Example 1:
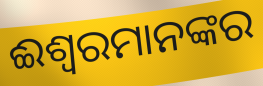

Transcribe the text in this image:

ଈଶ୍ୱରମାନଙ୍କର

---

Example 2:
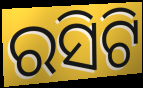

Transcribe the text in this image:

ରସିଟି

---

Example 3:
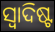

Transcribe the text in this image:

ସ୍ବାଦିଷ୍ଟ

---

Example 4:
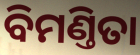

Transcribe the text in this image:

ବିମଣ୍ତିତା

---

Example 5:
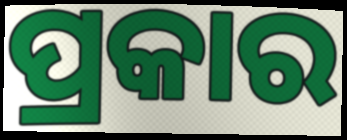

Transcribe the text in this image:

ପ୍ରକାର